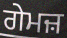
ਗੇਮਜ਼